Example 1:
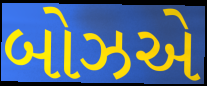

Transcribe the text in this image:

બોઝએ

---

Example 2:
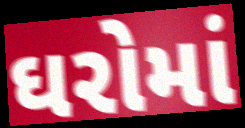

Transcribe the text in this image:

ઘરોમાં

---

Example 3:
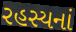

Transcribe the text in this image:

રહસ્યનાં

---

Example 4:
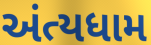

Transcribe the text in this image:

અંત્યધામ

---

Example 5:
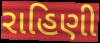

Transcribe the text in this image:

રાહિણી